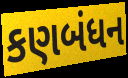
કણબંધન